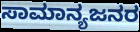
ಸಾಮಾನ್ಯಜನರ